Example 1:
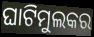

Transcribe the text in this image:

ଘାଟିମୁଲକର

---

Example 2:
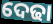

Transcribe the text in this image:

ଦେଢା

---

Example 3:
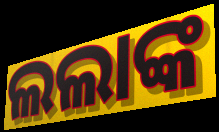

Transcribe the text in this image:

ଲଲାଙ୍କ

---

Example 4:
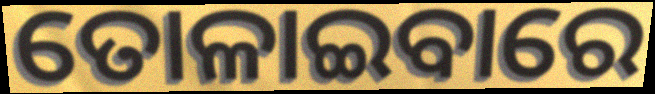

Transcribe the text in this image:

ତୋଳାଇବାରେ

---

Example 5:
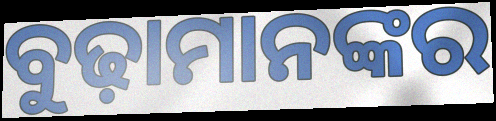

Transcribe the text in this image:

ବୁଢ଼ାମାନଙ୍କର